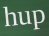
hup